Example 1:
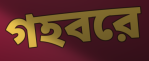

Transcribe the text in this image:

গহবরে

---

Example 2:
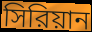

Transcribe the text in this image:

সিরিয়ান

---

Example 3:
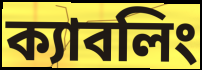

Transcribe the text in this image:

ক্যাবলিং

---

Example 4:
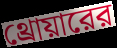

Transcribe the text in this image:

থ্রোয়ারের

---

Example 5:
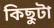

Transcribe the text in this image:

কিছুটা